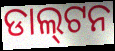
ଡାଲ୍‌ଟନ